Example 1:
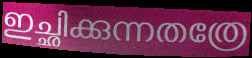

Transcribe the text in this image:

ഇച്ഛിക്കുന്നതത്രേ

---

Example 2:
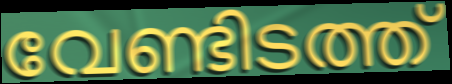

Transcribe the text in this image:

വേണ്ടിടത്ത്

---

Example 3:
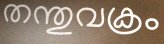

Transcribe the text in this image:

തന്തുവക്രം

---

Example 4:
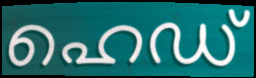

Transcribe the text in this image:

ഹെഡ്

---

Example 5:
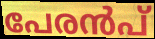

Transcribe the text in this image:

പേരൻപ്